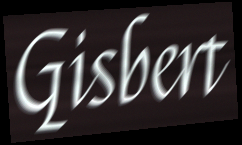
Gisbert